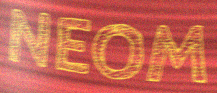
NEOM